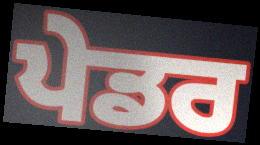
ਪੇਡਰ